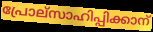
പ്രോല്സാഹിപ്പിക്കാന്